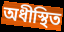
অধীস্থিত